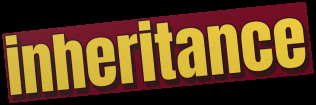
inheritance